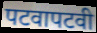
पटवापटवी